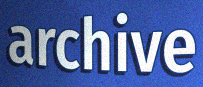
archive